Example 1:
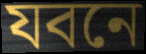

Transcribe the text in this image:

যবনে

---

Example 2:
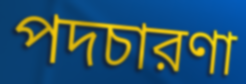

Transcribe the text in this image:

পদচারণা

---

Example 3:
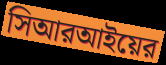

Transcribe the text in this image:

সিআরআইয়ের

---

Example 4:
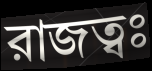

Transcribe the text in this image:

রাজত্বঃ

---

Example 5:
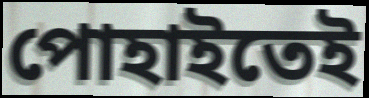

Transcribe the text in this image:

পোহাইতেই